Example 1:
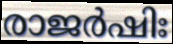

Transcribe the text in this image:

രാജർഷിഃ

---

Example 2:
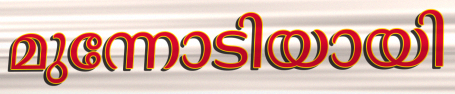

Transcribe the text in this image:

മുന്നോടിയായി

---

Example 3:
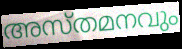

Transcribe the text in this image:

അസ്തമനവും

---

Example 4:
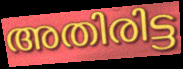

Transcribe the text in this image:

അതിരിട്ട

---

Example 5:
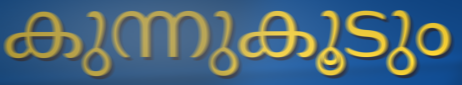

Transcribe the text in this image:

കുന്നുകൂടും